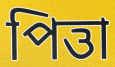
পিত্তা